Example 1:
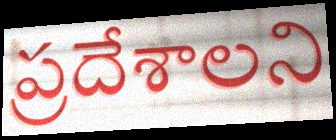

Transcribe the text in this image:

ప్రదేశాలని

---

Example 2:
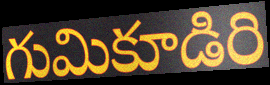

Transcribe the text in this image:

గుమికూడిరి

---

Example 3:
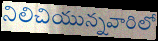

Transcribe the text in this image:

నిలిచియున్నవారిలో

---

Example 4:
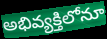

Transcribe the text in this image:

అభివ్యక్తిలోనూ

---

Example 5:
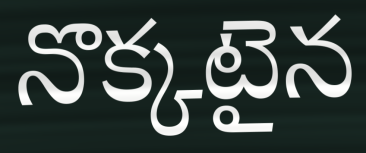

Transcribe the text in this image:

నొక్కటైన